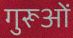
गुरूओं